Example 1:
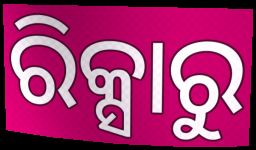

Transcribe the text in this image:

ରିକ୍ସାରୁ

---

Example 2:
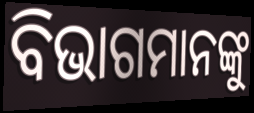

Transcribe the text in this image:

ବିଭାଗମାନଙ୍କୁ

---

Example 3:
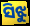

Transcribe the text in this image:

ସିଝୁ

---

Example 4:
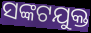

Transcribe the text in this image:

ସଙ୍କଟଯୁକ୍ତ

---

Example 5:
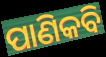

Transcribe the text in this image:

ପାଣିକବି